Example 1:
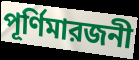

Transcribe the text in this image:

পূর্ণিমারজনী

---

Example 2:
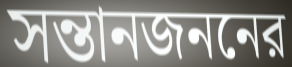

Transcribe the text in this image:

সন্তানজননের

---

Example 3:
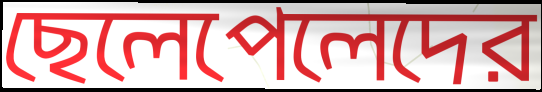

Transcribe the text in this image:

ছেলেপেলেদের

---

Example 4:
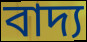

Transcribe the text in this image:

বাদ্য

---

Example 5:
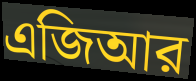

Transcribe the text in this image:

এজিআর